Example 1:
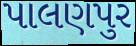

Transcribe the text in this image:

પાલણપુર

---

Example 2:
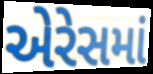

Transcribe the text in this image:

એરેસમાં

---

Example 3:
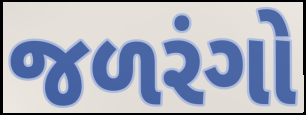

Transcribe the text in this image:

જળરંગો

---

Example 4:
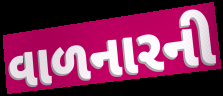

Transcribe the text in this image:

વાળનારની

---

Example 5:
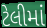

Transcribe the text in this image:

ટેલીમાં